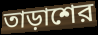
তাড়াশের